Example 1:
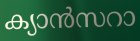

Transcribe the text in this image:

ക്യാൻസറാ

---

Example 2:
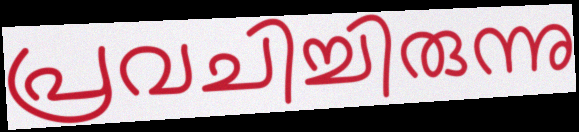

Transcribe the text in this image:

പ്രവചിച്ചിരുന്നു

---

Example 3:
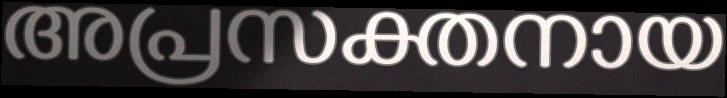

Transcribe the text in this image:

അപ്രസക്തനായ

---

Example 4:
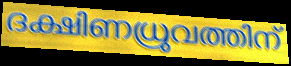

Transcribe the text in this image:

ദക്ഷിണധ്രുവത്തിന്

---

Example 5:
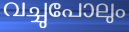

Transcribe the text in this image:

വച്ചുപോലും